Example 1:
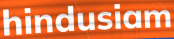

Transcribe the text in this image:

hindusiam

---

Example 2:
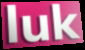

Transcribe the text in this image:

luk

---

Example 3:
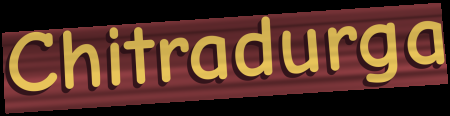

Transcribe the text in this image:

Chitradurga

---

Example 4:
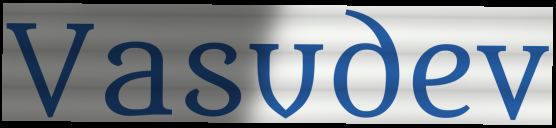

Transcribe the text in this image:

Vasudev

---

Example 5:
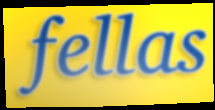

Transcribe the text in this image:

fellas